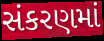
સંકરણમાં